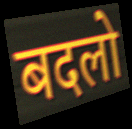
बदलो